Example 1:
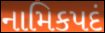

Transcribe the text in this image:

નામિકપદં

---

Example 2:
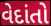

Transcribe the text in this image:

વેદાંતો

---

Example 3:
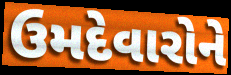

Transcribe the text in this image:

ઉમદેવારોને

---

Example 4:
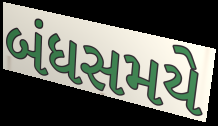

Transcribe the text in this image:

બંધસમયે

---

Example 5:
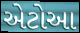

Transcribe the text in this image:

એટોઆ